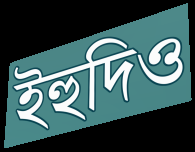
ইহুদিও